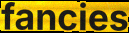
fancies